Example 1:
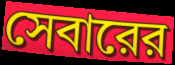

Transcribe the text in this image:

সেবারের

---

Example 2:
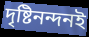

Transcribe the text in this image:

দৃষ্টিনন্দনই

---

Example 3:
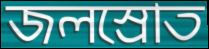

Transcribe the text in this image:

জলস্রোত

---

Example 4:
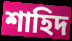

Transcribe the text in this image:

শাহিদ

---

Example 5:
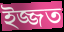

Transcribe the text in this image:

ইজ্জত